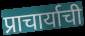
प्राचार्याची